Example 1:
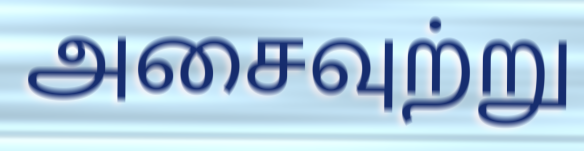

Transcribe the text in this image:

அசைவுற்று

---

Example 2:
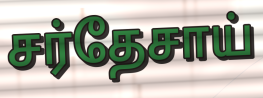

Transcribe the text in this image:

சர்தேசாய்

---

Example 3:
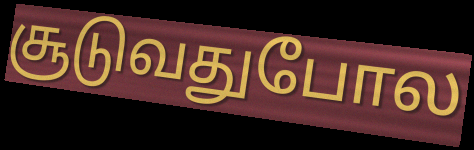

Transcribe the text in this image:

சூடுவதுபோல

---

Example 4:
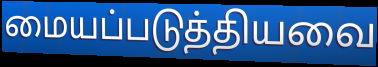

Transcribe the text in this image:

மையப்படுத்தியவை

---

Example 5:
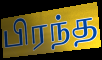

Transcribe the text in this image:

பிரந்த